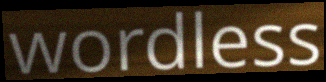
wordless